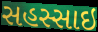
સહસ્સાઇ